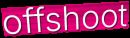
offshoot